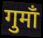
गुमाँ